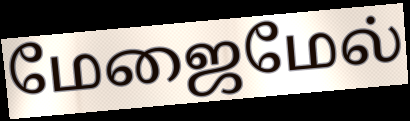
மேஜைமேல்